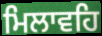
ਮਿਲਾਵਹਿ